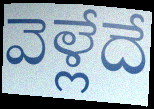
వెళ్లేదే